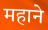
महाने